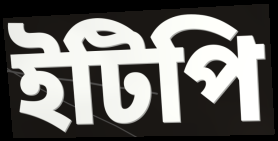
ইটিপি